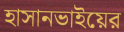
হাসানভাইয়ের